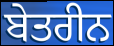
ਬੇਤਰੀਨ